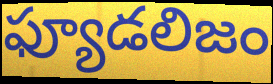
ఫ్యూడలిజం